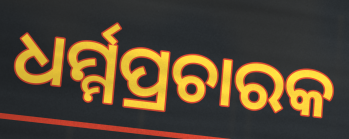
ଧର୍ମ୍ମପ୍ରଚାରକ